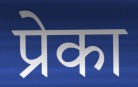
प्रेका